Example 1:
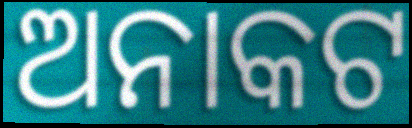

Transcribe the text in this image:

ଅନାକଟ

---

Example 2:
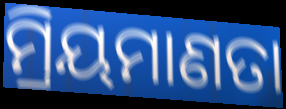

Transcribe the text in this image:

ମ୍ରିୟମାଣତା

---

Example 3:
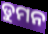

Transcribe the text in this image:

ଡୁମନ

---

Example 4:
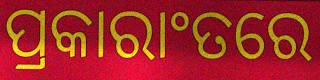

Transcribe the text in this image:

ପ୍ରକାରାଂତରେ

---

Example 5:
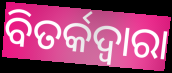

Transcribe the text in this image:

ବିତର୍କଦ୍ୱାରା